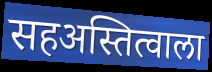
सहअस्तित्वाला